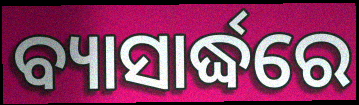
ବ୍ୟାସାର୍ଦ୍ଧରେ